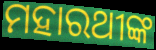
ମହାରଥୀଙ୍କ